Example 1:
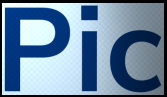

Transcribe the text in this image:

Pic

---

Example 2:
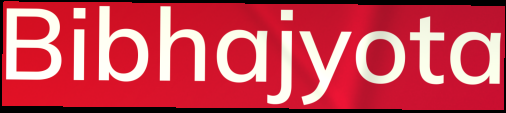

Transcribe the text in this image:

Bibhajyota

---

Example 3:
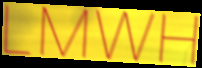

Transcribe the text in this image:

LMWH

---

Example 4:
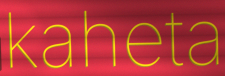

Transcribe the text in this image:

kaheta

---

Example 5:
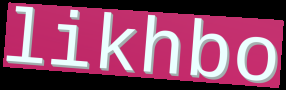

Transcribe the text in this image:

likhbo